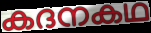
കദനകഥ